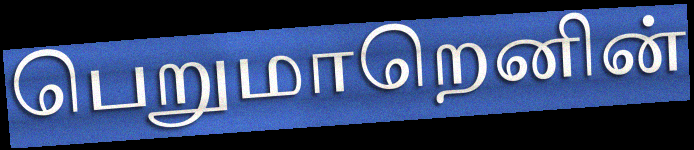
பெறுமாறெனின்